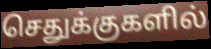
செதுக்குகளில்